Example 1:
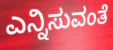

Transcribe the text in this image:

ಎನ್ನಿಸುವಂತೆ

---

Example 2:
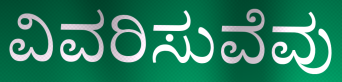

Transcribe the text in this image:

ವಿವರಿಸುವೆವು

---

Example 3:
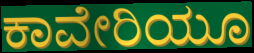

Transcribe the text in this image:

ಕಾವೇರಿಯೂ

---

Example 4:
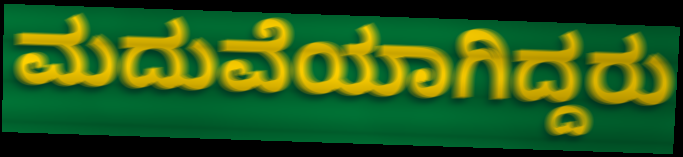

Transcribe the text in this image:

ಮದುವೆಯಾಗಿದ್ದರು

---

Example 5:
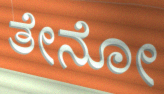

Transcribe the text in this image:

ತೇನೋ